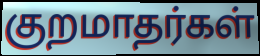
குறமாதர்கள்